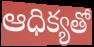
ఆధిక్యతో